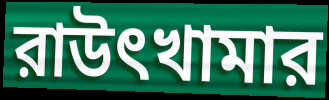
রাউৎখামার